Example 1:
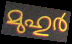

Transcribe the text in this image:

മുഹുർ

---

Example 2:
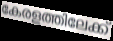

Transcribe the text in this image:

കേരളത്തിലേക്ക്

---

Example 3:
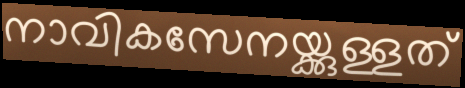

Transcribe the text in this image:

നാവികസേനയ്ക്കുള്ളത്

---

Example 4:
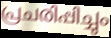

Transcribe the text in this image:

പ്രചരിപ്പിച്ചും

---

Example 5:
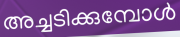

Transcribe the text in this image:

അച്ചടിക്കുമ്പോൾ